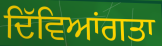
ਦਿੱਵਿਆਂਗਤਾ